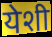
येशी